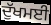
ਦੁੱਖਮਈ